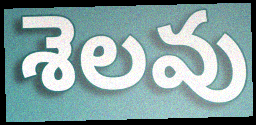
శెలవు